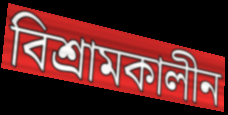
বিশ্রামকালীন